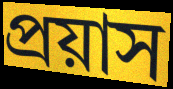
প্রয়াস